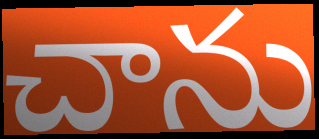
చాను